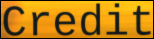
Credit